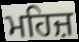
ਮਹਿਜ਼